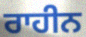
ਰਾਹੀਨ